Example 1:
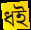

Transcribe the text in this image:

ধই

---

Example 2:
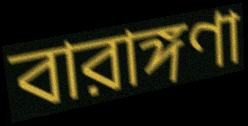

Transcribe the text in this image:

বারাঙ্গণা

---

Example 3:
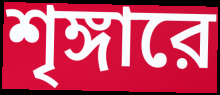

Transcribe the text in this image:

শৃঙ্গারে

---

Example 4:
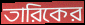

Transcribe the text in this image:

তারিকের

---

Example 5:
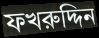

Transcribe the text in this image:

ফখরুদ্দিন